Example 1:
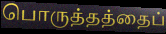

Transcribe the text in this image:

பொருத்தத்தைப்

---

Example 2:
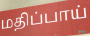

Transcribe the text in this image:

மதிப்பாய்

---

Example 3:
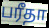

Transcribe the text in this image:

பரீதா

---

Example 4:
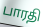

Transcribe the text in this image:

பாரதி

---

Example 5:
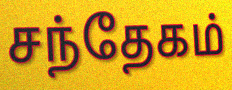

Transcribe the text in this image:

சந்தேகம்